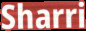
Sharri